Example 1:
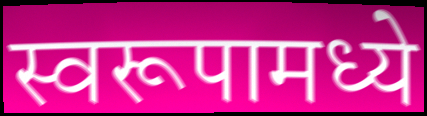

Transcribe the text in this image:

स्वरूपामध्ये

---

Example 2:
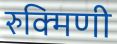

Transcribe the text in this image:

रुक्‍मिणी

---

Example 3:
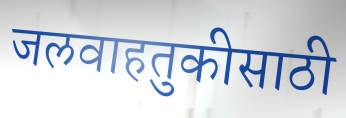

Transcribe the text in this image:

जलवाहतुकीसाठी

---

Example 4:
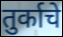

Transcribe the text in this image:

तुर्काचे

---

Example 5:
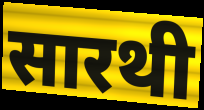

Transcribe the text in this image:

सारथी